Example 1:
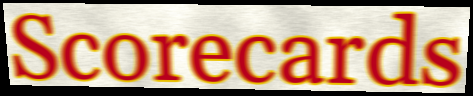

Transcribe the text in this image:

Scorecards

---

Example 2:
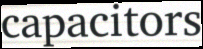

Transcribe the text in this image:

capacitors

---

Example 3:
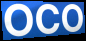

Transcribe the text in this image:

OCO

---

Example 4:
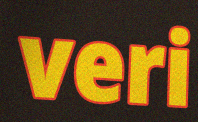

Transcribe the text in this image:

veri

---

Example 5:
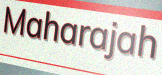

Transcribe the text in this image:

Maharajah